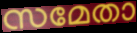
സമേതാ